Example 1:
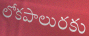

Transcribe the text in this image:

లోకపాలురకు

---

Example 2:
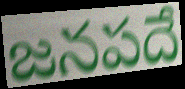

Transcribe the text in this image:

జనపదే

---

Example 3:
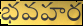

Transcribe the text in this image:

భవహర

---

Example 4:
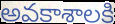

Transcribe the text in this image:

అవకాశాలకి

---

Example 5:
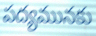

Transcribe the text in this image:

పద్యమునకు